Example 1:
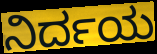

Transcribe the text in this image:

ನಿರ್ದಯ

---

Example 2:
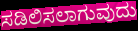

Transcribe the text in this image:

ಸಡಿಲಿಸಲಾಗುವುದು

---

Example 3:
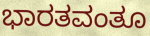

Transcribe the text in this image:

ಭಾರತವಂತೂ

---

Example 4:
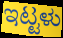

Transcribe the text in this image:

ಇಟ್ಟಳು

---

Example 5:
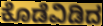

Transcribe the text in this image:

ಕೊಡೆವಿಡಿದ